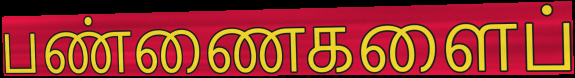
பண்ணைகளைப்